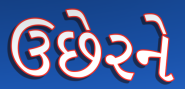
ઉછેરને